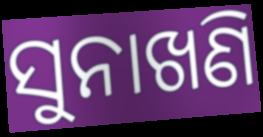
ସୁନାଖଣି